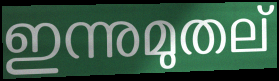
ഇന്നുമുതല്